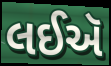
લઈઍ